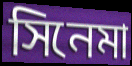
সিনেমা